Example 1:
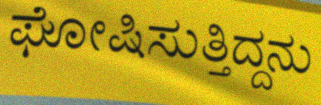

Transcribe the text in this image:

ಘೋಷಿಸುತ್ತಿದ್ದನು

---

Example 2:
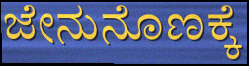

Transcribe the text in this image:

ಜೇನುನೊಣಕ್ಕೆ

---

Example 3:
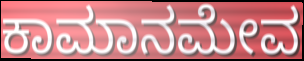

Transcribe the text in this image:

ಕಾಮಾನಮೇವ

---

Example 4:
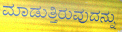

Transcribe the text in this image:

ಮಾಡುತ್ತಿರುವುದನ್ನು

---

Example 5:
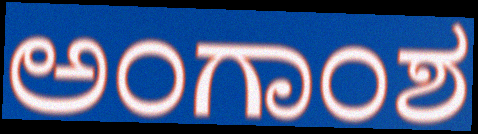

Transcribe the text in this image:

ಅಂಗಾಂಶ